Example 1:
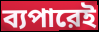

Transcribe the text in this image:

ব্যপারেই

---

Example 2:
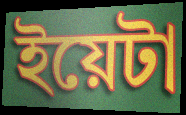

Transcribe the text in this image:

ইয়েটা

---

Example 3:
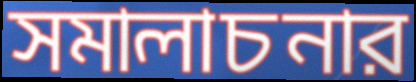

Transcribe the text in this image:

সমালাচনার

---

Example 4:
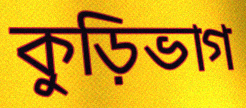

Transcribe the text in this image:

কুড়িভাগ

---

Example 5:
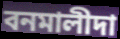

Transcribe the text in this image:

বনমালীদা